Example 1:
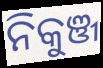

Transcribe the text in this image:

ନିକୁଞ୍ଜ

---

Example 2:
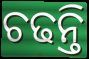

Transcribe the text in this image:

ଚଢନ୍ତି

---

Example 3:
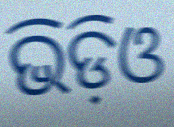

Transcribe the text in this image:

ଭିଡ଼ିଓ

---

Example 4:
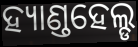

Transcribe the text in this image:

ହ୍ୟାଣ୍ଡହେଲ୍ଡ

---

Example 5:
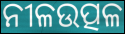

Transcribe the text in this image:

ନୀଳଉତ୍ପଳ